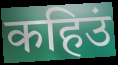
कहिउं